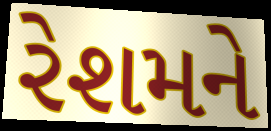
રેશમને